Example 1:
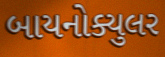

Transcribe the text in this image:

બાયનોક્યુલર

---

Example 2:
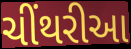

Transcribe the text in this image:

ચીંથરીઆ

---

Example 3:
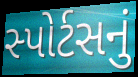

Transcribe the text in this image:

સ્પોર્ટસનું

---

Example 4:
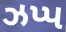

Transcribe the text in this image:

ઝપ્પ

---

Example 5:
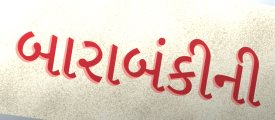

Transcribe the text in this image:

બારાબંકીની